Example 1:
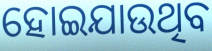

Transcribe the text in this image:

ହୋଇଯାଉଥିବ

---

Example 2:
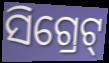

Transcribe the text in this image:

ସିଗ୍ରେଟ୍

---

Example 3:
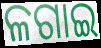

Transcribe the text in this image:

ଳଗାଇ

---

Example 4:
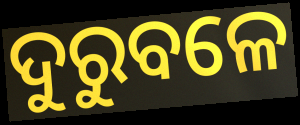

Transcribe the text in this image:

ଦୁରୁବଳେ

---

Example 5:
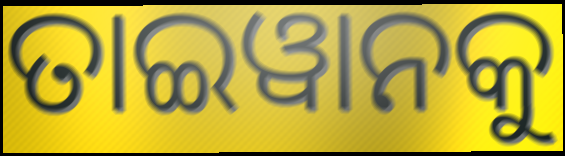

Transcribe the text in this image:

ତାଇୱାନକୁ